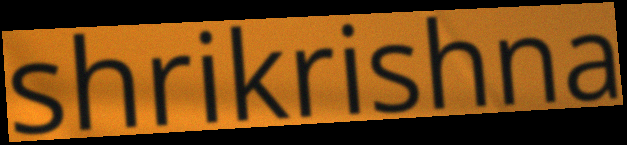
shrikrishna